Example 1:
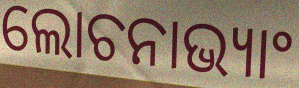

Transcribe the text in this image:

ଲୋଚନାଭ୍ୟାଂ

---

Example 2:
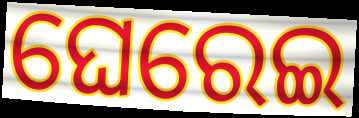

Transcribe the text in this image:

ଘେରେଇ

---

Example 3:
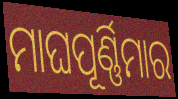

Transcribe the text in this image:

ମାଘପୂର୍ଣ୍ଣିମାର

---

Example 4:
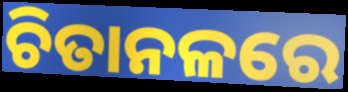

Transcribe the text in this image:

ଚିତାନଳରେ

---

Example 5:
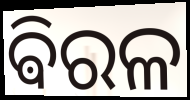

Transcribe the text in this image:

ଵିରଳ